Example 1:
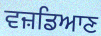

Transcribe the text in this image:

ਵਜ਼ਡਿਆਣ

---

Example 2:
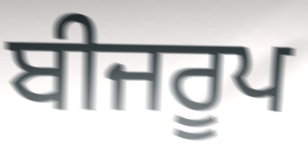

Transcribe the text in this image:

ਬੀਜਰੂਪ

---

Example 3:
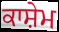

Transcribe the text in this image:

ਕਾਸ਼ੇਮ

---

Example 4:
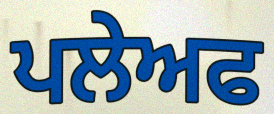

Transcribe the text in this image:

ਪਲੇਅਫ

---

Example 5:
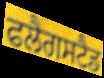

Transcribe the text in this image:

ਫਲੈਗਸਟੈਡ